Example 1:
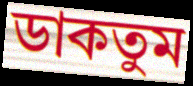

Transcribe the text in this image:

ডাকতুম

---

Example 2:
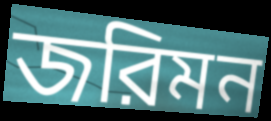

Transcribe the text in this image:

জরিমন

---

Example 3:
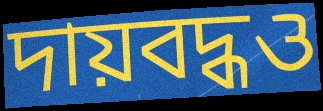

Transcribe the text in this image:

দায়বদ্ধও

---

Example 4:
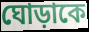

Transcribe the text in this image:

ঘোড়াকে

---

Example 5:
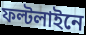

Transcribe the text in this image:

ফল্টলাইনে